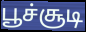
பூச்சூடி